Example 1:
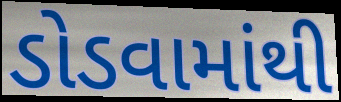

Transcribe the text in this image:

ડોડવામાંથી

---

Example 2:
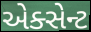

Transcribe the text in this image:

એક્સેન્ટ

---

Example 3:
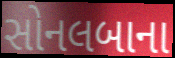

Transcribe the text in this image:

સોનલબાના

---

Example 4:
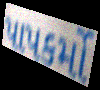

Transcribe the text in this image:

પાપકર્મો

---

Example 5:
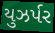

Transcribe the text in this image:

યુઝર્પર